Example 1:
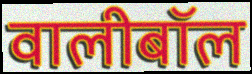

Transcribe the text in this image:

वालीबॉल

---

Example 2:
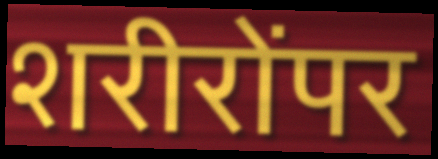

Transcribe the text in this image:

शरीरोंपर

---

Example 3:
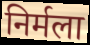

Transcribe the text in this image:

निर्मला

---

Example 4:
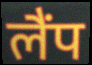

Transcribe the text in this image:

लैंप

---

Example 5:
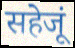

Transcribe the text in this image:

सहेजूं